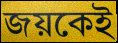
জয়কেই